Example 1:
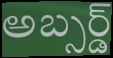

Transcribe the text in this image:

అబ్సర్డ్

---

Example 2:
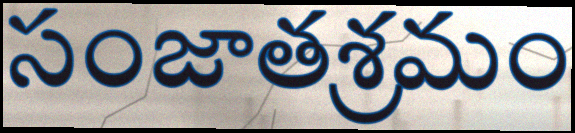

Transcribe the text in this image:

సంజాతశ్రమం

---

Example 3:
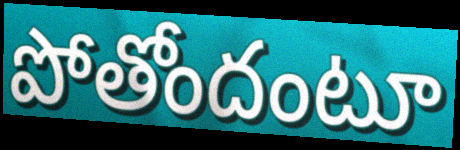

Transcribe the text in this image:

పోతోందంటూ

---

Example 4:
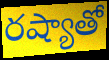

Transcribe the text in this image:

రష్యాతో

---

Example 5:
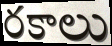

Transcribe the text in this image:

రకాలు